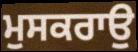
ਮੁਸਕਰਾਉ